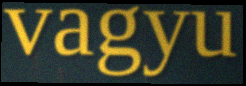
vagyu